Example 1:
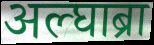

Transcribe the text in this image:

अल्घाब्रा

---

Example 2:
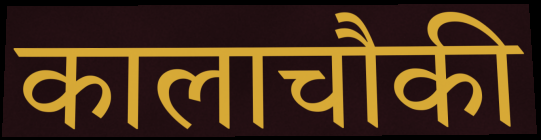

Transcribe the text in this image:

कालाचौकी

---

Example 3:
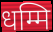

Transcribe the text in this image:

धम्मि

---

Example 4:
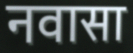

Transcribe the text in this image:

नवासा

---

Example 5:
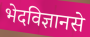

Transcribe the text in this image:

भेदविज्ञानसे